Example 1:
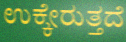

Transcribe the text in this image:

ಉಕ್ಕೇರುತ್ತದೆ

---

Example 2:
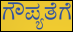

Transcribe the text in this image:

ಗೌಪ್ಯತೆಗೆ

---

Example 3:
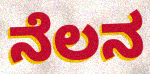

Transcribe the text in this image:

ನೆಲನ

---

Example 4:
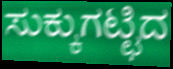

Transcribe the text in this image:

ಸುಕ್ಕುಗಟ್ಟಿದ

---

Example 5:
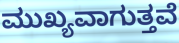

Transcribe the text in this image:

ಮುಖ್ಯವಾಗುತ್ತವೆ